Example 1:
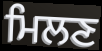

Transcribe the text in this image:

ਮਿਲਣ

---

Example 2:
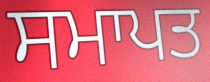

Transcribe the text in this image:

ਸਮਾਪਤ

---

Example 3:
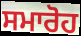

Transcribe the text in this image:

ਸਮਾਰੋਹ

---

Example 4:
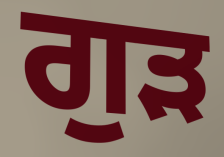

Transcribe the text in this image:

ਗੁੜ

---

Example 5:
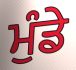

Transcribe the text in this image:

ਮੁੰਡੇ